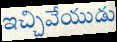
ఇచ్చివేయుడు